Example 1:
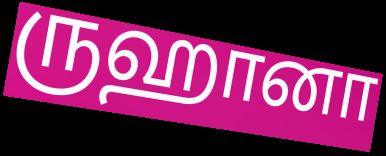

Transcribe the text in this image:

ருஹானா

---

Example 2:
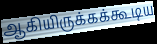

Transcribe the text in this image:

ஆகியிருக்கக்கூடிய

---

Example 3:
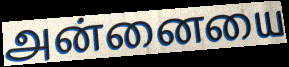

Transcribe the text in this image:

அன்னையை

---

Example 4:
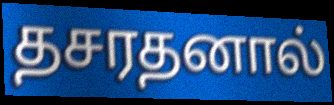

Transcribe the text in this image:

தசரதனால்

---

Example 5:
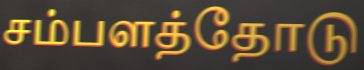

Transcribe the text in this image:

சம்பளத்தோடு